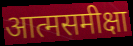
आत्मसमीक्षा